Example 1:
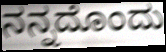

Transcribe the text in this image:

ನನ್ನದೊಂದು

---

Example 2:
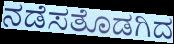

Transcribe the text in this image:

ನಡೆಸತೊಡಗಿದ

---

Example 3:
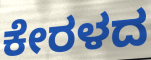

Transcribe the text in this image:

ಕೇರಳದ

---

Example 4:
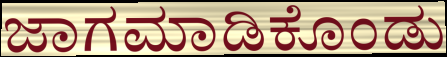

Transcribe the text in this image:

ಜಾಗಮಾಡಿಕೊಂಡು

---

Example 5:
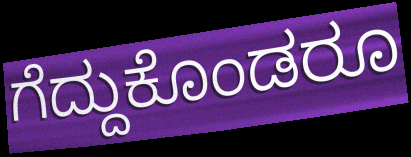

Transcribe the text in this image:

ಗೆದ್ದುಕೊಂಡರೂ